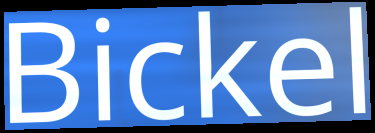
Bickel